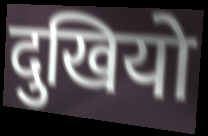
दुखियो